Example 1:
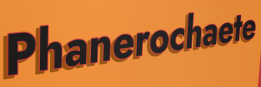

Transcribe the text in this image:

Phanerochaete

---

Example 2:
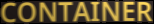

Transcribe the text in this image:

CONTAINER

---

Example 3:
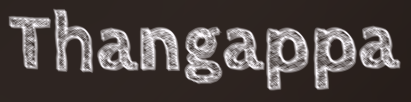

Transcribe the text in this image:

Thangappa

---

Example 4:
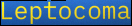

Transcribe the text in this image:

Leptocoma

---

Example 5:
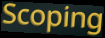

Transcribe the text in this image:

Scoping